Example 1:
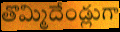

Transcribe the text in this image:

తొమ్మిదేండ్లుగా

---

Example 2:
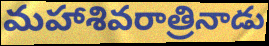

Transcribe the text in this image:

మహాశివరాత్రినాడు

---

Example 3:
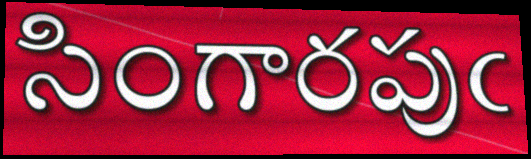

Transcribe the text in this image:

సింగారపుఁ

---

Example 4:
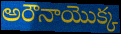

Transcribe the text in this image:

అరౌనాయొక్క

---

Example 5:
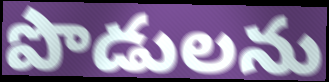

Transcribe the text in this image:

పొడులను